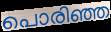
പൊരിഞ്ഞ